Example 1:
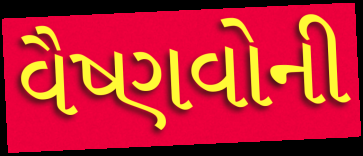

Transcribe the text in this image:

વૈષ્ણવોની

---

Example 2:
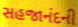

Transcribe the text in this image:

સહજાનંદની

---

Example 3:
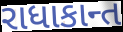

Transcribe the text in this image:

રાધાકાન્ત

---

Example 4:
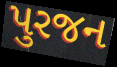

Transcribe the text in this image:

પુરજન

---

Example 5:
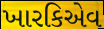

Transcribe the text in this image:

ખારકિએવ